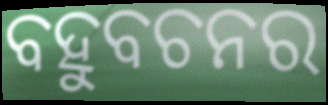
ବହୁବଚନର